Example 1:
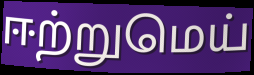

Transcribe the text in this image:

ஈற்றுமெய்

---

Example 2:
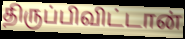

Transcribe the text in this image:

திருப்பிவிட்டான்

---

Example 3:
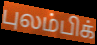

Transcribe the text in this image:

புலம்பிக்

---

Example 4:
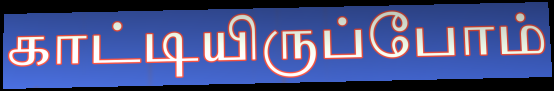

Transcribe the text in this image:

காட்டியிருப்போம்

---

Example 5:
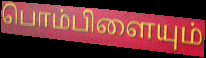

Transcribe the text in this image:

பொம்பிளையும்